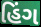
હિંગ